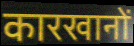
कारखानों